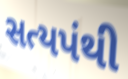
સત્યપંથી